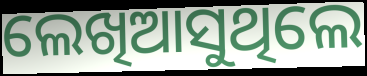
ଲେଖିଆସୁଥିଲେ